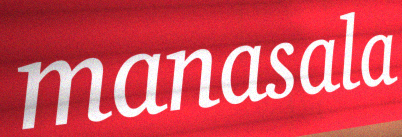
manasala